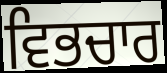
ਵਿਭਚਾਰ